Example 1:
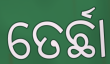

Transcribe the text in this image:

ତେର୍ଛା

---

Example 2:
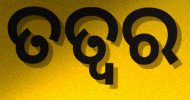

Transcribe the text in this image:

ତତ୍ଵର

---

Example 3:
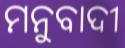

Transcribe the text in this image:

ମନୁବାଦୀ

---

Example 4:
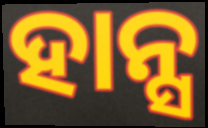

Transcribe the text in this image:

ହାନ୍ସ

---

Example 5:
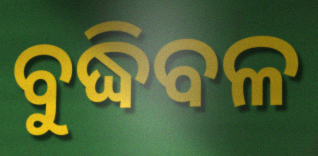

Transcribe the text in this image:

ବୁଦ୍ଧିବଳ